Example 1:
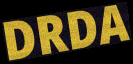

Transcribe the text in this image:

DRDA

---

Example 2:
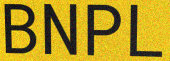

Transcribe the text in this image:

BNPL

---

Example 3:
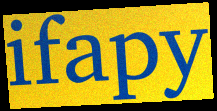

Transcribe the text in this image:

ifapy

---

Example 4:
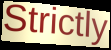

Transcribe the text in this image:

Strictly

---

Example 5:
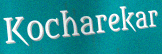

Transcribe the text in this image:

Kocharekar